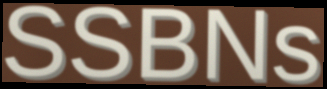
SSBNs